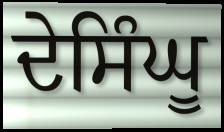
ਦੇਸਿੰਘੂ